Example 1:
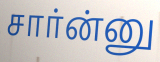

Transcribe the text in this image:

சார்ன்னு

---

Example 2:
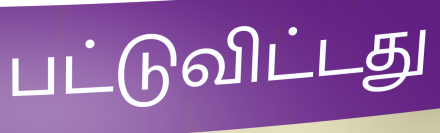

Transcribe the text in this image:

பட்டுவிட்டது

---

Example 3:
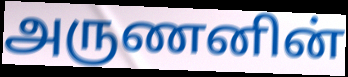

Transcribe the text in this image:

அருணனின்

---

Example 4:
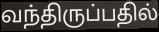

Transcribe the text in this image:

வந்திருப்பதில்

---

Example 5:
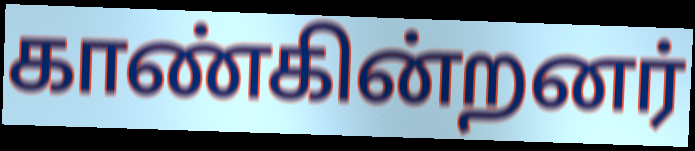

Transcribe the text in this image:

காண்கின்றனர்